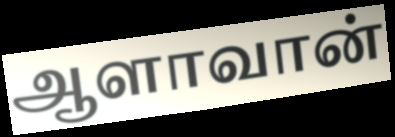
ஆளாவான்